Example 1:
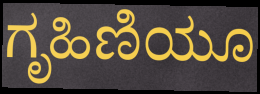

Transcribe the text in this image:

ಗೃಹಿಣಿಯೂ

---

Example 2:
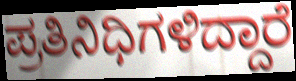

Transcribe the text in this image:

ಪ್ರತಿನಿಧಿಗಳಿದ್ದಾರೆ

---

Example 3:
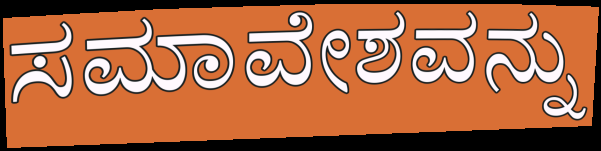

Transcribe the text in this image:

ಸಮಾವೇಶವನ್ನು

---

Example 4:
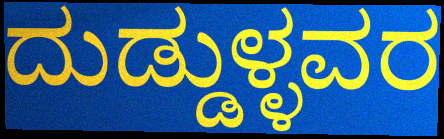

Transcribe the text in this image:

ದುಡ್ಡುಳ್ಳವರ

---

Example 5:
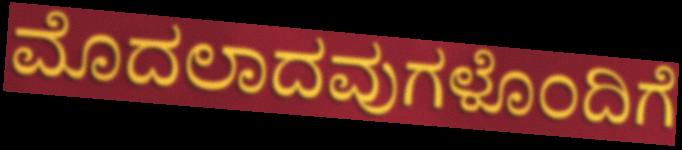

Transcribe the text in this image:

ಮೊದಲಾದವುಗಳೊಂದಿಗೆ